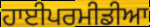
ਹਾਈਪਰਮੀਡੀਆ